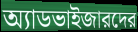
অ্যাডভাইজারদের